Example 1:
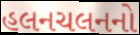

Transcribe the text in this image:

હલનચલનનો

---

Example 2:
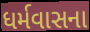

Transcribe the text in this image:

ધર્મવાસના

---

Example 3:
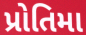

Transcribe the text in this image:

પ્રોતિમા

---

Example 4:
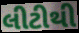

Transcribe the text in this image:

લીટીથી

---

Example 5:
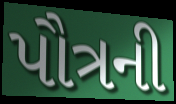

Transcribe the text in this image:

પૌત્રની